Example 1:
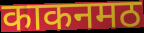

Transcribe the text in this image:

काकनमठ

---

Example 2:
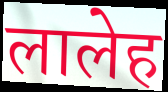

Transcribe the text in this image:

लालेह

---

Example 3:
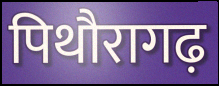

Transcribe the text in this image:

पिथौरागढ़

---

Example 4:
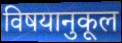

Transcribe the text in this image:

विषयानुकूल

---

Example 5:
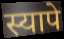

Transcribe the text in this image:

स्यापे